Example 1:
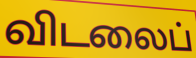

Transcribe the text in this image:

விடலைப்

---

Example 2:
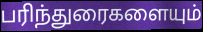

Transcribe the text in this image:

பரிந்துரைகளையும்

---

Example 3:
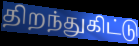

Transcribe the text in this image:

திறந்துகிட்டு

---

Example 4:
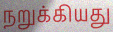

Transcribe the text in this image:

நறுக்கியது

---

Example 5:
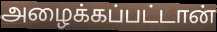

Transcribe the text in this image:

அழைக்கப்பட்டான்